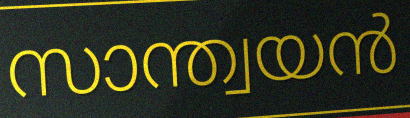
സാന്ത്വയൻ